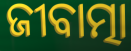
ଜୀବାତ୍ମା